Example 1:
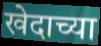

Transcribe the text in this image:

खेदाच्या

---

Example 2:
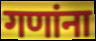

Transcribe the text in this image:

गणांना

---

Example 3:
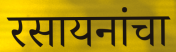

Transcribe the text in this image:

रसायनांचा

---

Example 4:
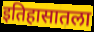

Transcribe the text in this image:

इतिहासातला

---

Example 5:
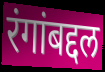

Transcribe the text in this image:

रंगांबद्दल